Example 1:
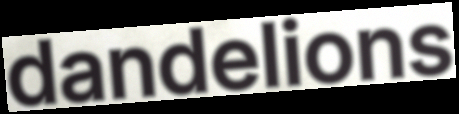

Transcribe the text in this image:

dandelions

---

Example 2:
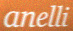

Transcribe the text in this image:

anelli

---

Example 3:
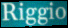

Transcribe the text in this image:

Riggio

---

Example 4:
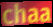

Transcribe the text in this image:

chaa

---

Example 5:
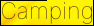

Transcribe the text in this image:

Camping